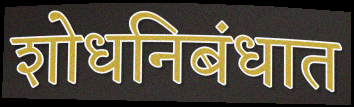
शोधनिबंधात